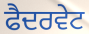
ਫੈਦਰਵੇਟ